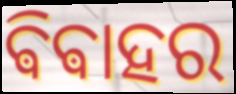
ଵିଵାହର